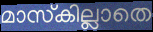
മാസ്‌കില്ലാതെ